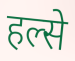
हल्से